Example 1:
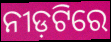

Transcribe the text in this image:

ନୀଡ଼ଟିରେ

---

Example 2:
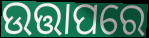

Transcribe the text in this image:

ଉତ୍ତାପରେ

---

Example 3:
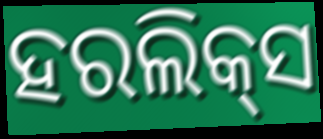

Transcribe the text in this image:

ହରଲିକ୍‍ସ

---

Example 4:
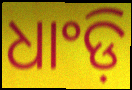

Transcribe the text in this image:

ଧାଂଡ଼ି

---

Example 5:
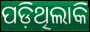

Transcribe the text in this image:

ପଡ଼ିଥିଲାକି